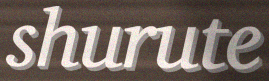
shurute